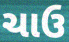
ચાઉ